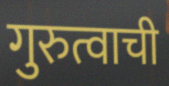
गुरुत्वाची